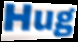
Hug